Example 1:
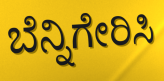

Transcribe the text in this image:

ಬೆನ್ನಿಗೇರಿಸಿ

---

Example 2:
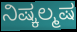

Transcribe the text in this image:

ನಿಷ್ಕಲ್ಮಷ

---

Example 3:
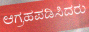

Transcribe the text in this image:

ಆಗ್ರಹಪಡಿಸಿದರು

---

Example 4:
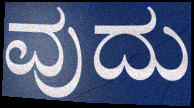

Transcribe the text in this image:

ವುದು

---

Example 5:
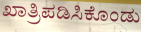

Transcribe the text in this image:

ಖಾತ್ರಿಪಡಿಸಿಕೊಂಡು